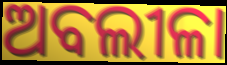
ଅବଲୀଳା